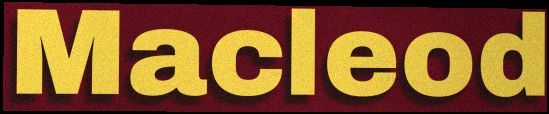
Macleod